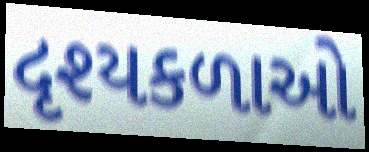
દૃશ્યકળાઓ